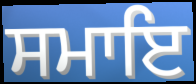
ਸਮਾਇ